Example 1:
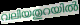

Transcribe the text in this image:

വലിയതുറയിൽ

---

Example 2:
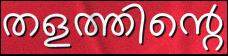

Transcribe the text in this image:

തളത്തിന്റെ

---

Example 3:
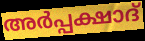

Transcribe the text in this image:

അർപ്പക്ഷാദ്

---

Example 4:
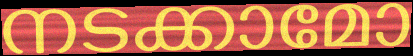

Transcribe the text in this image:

നടക്കാമോ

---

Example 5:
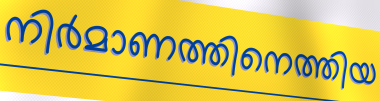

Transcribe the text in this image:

നിർമാണത്തിനെത്തിയ